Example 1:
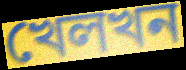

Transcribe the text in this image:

খেলখন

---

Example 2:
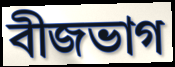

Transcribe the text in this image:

বীজভাগ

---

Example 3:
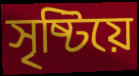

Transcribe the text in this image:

সৃষ্টিয়ে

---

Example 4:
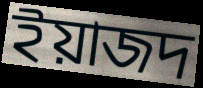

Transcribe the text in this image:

ইয়াজদ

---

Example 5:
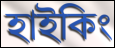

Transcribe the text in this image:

হাইকিং